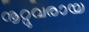
നൂറ്റുവരായ